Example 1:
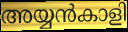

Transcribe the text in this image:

അയ്യൻകാളി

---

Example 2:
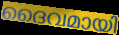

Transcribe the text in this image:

ദൈവമായി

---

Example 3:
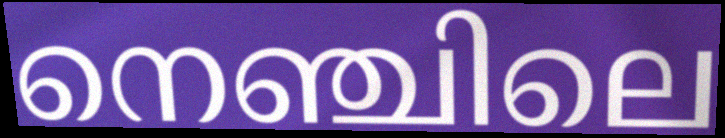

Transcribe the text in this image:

നെഞ്ചിലെ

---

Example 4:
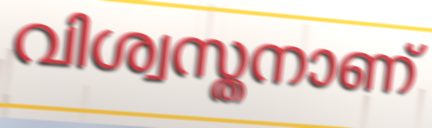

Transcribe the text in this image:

വിശ്വസ്തനാണ്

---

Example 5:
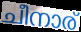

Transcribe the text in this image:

ചീനാര്